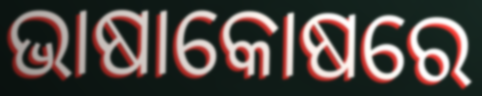
ଭାଷାକୋଷରେ